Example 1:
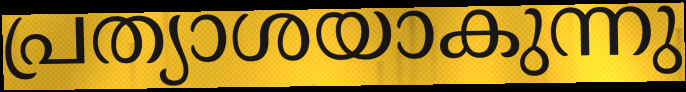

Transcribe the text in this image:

പ്രത്യാശയാകുന്നു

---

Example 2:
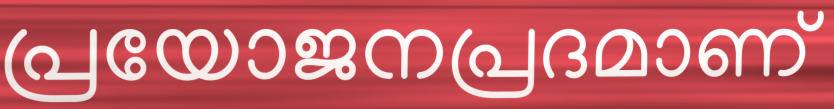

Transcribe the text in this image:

പ്രയോജനപ്രദമാണ്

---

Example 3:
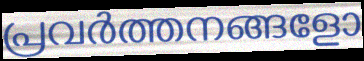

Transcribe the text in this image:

പ്രവർത്തനങ്ങളോ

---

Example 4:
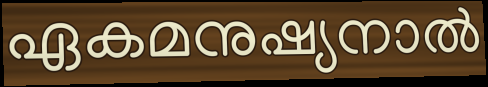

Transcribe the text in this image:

ഏകമനുഷ്യനാൽ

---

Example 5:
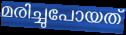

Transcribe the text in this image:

മരിച്ചുപോയത്